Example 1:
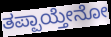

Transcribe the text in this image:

ತಪ್ಪಾಯ್ತೇನೋ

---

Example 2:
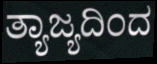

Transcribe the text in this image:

ತ್ಯಾಜ್ಯದಿಂದ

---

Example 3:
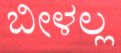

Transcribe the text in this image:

ಬೀಳಲ್ಲ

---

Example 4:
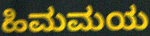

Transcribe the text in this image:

ಹಿಮಮಯ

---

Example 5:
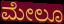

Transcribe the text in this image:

ಮೇಲೂ